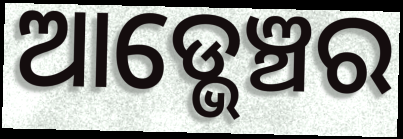
ଆଡ୍ଭେଞ୍ଚର